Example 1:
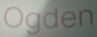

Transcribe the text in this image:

Ogden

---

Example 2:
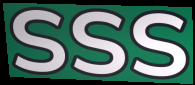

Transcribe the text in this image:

SSS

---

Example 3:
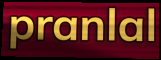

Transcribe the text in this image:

pranlal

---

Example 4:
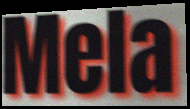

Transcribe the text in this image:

Mela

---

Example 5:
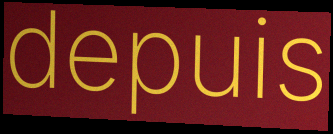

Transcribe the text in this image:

depuis